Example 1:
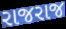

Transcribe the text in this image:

રાજરાજ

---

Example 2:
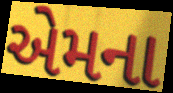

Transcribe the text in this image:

એમના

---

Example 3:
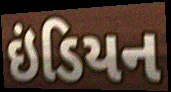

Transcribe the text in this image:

ઇંડિયન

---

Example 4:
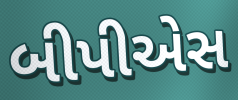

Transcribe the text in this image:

બીપીએસ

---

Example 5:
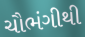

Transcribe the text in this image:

ચૌભંગીથી